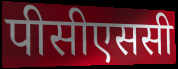
पीसीएससी